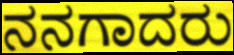
ನನಗಾದರು